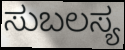
ಸುಬಲಸ್ಯ